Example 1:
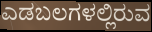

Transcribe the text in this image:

ಎಡಬಲಗಳಲ್ಲಿರುವ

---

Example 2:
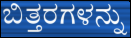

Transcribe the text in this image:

ಬಿತ್ತರಗಳನ್ನು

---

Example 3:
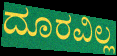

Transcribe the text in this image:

ದೂರವಿಲ್ಲ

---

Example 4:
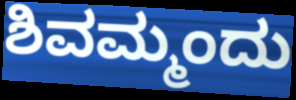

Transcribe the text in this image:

ಶಿವಮ್ಮಂದು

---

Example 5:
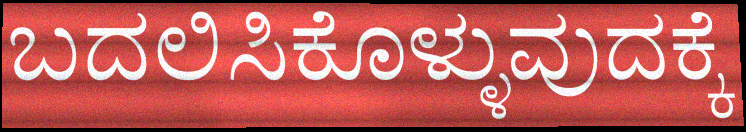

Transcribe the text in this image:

ಬದಲಿಸಿಕೊಳ್ಳುವುದಕ್ಕೆ